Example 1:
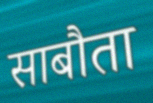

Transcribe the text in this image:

साबौता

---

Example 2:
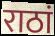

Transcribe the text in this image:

राठां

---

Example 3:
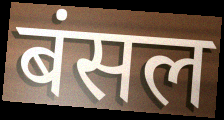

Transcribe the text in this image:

बंसल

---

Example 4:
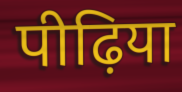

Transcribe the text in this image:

पीढ़िया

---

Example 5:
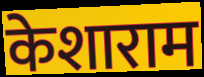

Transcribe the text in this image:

केशाराम